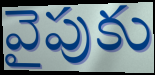
వైపుకు